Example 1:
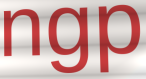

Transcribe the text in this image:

ngp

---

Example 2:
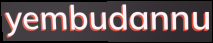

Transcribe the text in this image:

yembudannu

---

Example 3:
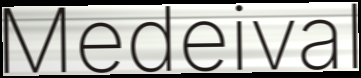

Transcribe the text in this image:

Medeival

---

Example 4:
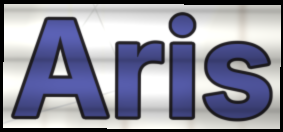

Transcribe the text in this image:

Aris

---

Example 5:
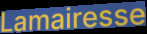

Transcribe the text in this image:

Lamairesse